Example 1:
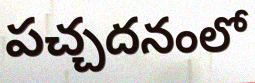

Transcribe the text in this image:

పచ్చదనంలో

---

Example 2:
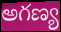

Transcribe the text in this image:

అగణ్య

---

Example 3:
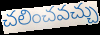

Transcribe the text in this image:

చలించవచ్చు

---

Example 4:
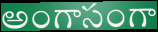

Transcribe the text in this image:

అంగాసంగా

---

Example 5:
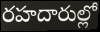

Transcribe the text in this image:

రహదారుల్లో